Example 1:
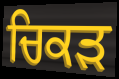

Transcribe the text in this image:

ਚਿਕੜ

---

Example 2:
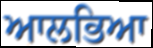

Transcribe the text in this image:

ਆਲਭਿਆ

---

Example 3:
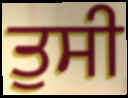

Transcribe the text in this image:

ਤੁਸੀ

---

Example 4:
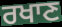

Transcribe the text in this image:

ਰਖਾਣ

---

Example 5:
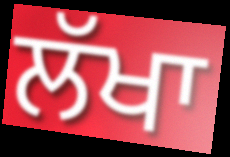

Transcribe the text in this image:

ਲੱਖਾ